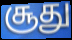
சூது